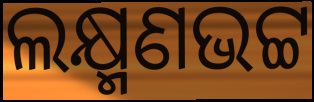
ଲକ୍ଷ୍ମଣଭଟ୍ଟ